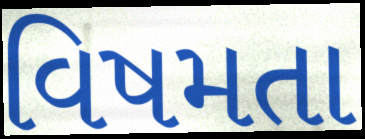
વિષમતા